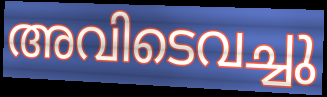
അവിടെവച്ചു